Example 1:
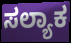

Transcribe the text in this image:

ಸಲ್ಯಾಕ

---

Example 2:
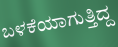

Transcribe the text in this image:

ಬಳಕೆಯಾಗುತ್ತಿದ್ದ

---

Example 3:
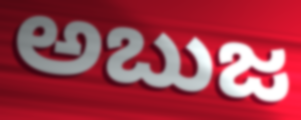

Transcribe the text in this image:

ಅಬುಜ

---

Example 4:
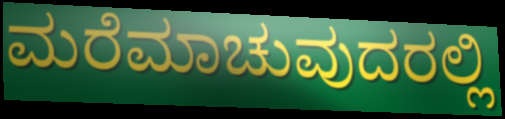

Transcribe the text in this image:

ಮರೆಮಾಚುವುದರಲ್ಲಿ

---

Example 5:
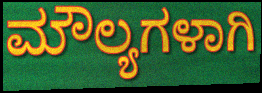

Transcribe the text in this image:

ಮೌಲ್ಯಗಳಾಗಿ